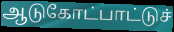
ஆடுகோட்பாட்டுச்